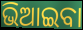
ଭିଆଇବା